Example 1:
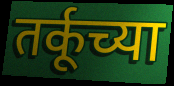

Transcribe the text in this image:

तर्कूच्या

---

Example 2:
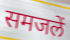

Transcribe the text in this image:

समजलें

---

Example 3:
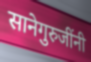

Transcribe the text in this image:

सानेगुरुजींनी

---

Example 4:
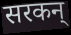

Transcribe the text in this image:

सरकन्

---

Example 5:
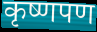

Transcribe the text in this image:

कृष्णपण